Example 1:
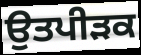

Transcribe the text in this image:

ਉਤਪੀੜਕ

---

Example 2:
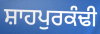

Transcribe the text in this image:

ਸ਼ਾਹਪੁਰਕੰਢੀ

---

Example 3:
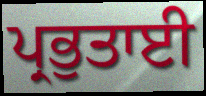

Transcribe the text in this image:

ਪ੍ਰਭੁਤਾਈ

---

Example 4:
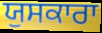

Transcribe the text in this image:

ਯੁਸਕਾਰਾ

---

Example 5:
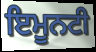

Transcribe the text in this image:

ਇਮੂਨਟੀ